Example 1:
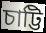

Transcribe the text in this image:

চাট্টি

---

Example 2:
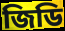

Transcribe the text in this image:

জিডি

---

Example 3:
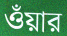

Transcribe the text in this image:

ওঁয়ার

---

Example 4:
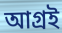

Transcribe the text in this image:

আগ্রই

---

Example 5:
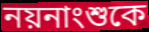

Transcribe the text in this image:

নয়নাংশুকে